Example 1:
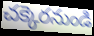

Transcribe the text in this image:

చక్కెరనుండి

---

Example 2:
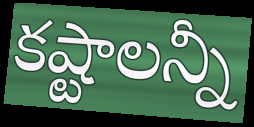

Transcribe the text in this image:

కష్టాలన్నీ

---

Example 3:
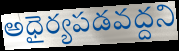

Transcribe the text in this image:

అధైర్యపడవద్దని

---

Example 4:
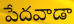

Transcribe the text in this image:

పేదవాడా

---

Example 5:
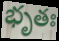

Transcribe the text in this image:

భృతః